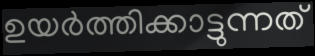
ഉയർത്തിക്കാട്ടുന്നത്